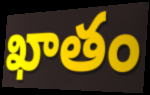
ఖాతం